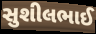
સુશીલભાઈ